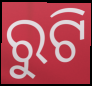
ରୁଟି